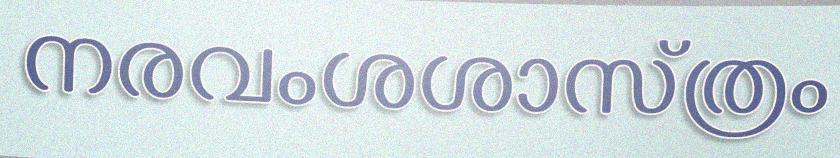
നരവംശശാസ്‌ത്രം